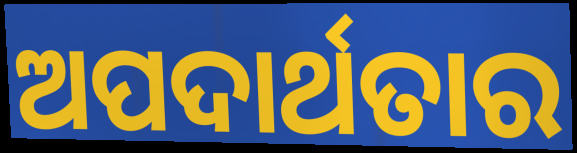
ଅପଦାର୍ଥତାର